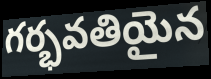
గర్భవతియైన